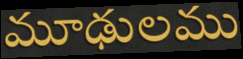
మూఢులము